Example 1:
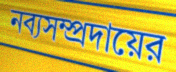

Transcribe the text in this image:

নব্যসম্প্রদায়ের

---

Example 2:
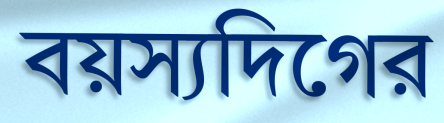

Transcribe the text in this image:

বয়স্যদিগের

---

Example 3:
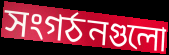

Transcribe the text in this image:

সংগঠনগুলো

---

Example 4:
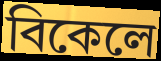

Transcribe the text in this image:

বিকেলে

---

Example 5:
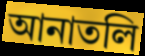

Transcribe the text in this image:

আনাতলি